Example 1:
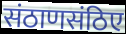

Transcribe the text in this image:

संठाणसंठिए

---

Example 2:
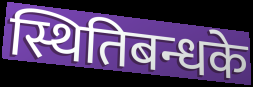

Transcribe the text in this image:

स्थितिबन्धके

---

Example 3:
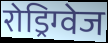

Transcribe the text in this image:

रोड्रिग्वेज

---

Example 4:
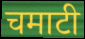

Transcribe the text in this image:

चमाटी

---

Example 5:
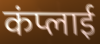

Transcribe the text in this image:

कंप्लाई